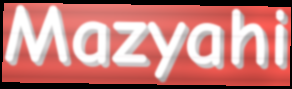
Mazyahi